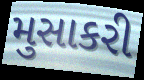
મુસાકરી